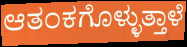
ಆತಂಕಗೊಳ್ಳುತ್ತಾಳೆ